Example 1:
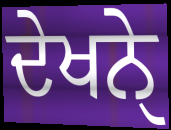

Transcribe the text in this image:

ਦੇਖਨੑੇ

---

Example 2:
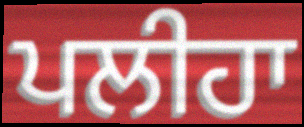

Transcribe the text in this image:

ਪਲੀਹਾ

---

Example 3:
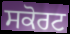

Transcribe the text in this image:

ਸਕੋਰਟ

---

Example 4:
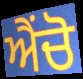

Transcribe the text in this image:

ਐਂਚੋ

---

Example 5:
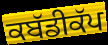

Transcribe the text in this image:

ਕਬੱਡੀਕੱਪ